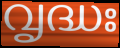
വൃദ്ധഃ